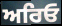
ਅਰਿਓ